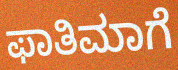
ಫಾತಿಮಾಗೆ